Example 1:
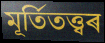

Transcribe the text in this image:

মূৰ্তিতত্ত্বৰ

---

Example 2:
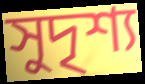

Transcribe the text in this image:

সুদৃশ্য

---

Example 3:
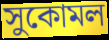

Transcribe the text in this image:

সুকোমল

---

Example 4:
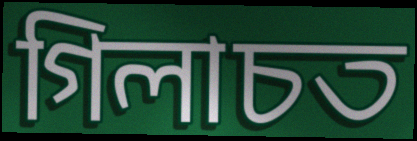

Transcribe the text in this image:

গিলাচত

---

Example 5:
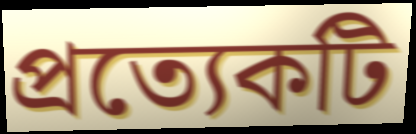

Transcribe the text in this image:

প্ৰত্যেকটি